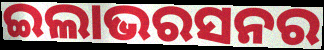
ଇଲାଭରସନର